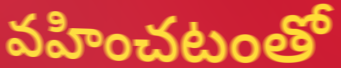
వహించటంతో